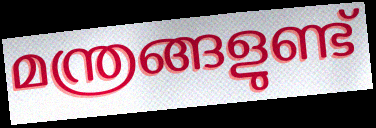
മന്ത്രങ്ങളുണ്ട്